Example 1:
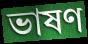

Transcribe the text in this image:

ভাষণ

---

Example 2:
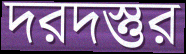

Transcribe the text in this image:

দরদস্তুর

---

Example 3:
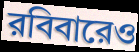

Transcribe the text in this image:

রবিবারেও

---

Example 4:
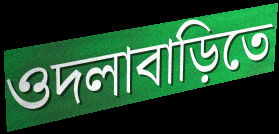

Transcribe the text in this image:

ওদলাবাড়িতে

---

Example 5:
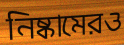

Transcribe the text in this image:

নিষ্কামেরও